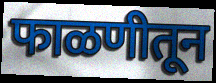
फाळणीतून